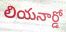
లియనార్డో